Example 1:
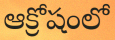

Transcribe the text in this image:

ఆక్రోషంలో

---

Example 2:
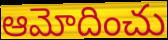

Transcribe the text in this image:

ఆమోదించు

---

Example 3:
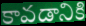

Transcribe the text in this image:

కావడానికి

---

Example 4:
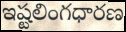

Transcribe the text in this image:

ఇష్టలింగధారణ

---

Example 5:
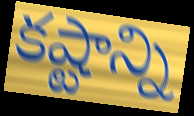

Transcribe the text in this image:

కష్టాన్ని